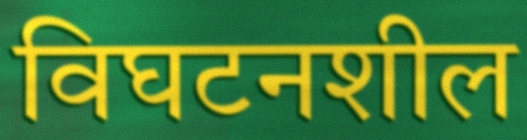
विघटनशील